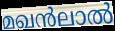
മഖൻലാൽ